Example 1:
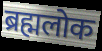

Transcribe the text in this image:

ब्रह्मलोक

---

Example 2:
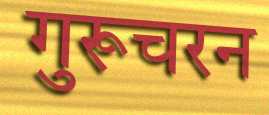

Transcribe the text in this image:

गुरूचरन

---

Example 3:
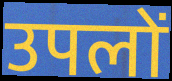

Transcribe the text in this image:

उपलों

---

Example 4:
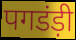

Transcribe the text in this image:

पगडंड़ी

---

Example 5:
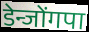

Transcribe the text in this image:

डेन्जोंगपा